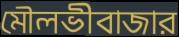
মৌলভীবাজার